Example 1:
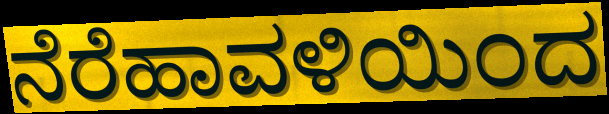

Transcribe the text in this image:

ನೆರೆಹಾವಳಿಯಿಂದ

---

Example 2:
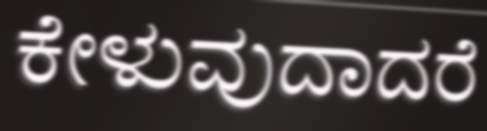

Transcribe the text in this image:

ಕೇಳುವುದಾದರೆ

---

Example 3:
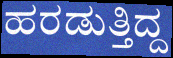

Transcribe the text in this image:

ಹರಡುತ್ತಿದ್ದ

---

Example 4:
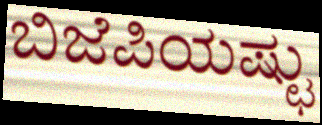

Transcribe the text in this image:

ಬಿಜೆಪಿಯಷ್ಟು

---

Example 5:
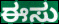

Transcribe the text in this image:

ಈಸು